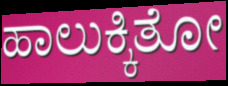
ಹಾಲುಕ್ಕಿತೋ